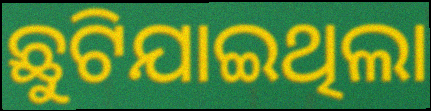
ଛୁଟିଯାଇଥିଲା